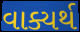
વાક્યર્થ